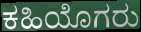
ಕಹಿಯೊಗರು